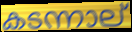
കടന്നാല്